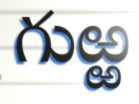
గుఱ్ఱ